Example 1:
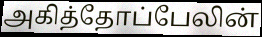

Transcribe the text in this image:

அகித்தோப்பேலின்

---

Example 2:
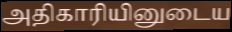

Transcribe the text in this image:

அதிகாரியினுடைய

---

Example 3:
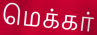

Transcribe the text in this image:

மெக்கர்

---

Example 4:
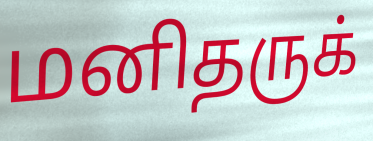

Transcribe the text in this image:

மனிதருக்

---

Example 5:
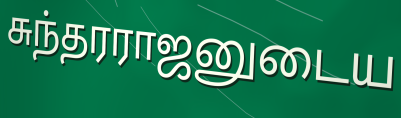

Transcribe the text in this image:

சுந்தரராஜனுடைய